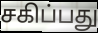
சகிப்பது